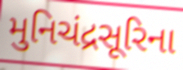
મુનિચંદ્રસૂરિના